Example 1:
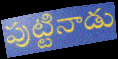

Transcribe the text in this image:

పుట్టినాడు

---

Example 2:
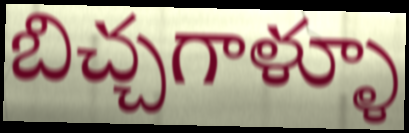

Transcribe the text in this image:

బిచ్చగాళ్ళూ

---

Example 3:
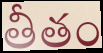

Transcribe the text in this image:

తీతం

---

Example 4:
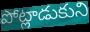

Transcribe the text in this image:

పోట్లాడుకుని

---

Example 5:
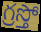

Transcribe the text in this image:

గ్రస్తో